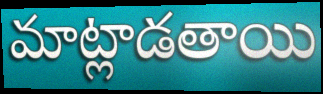
మాట్లాడతాయి